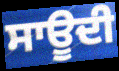
ਸਾਊਦੀ